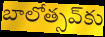
బాలోత్సవ్‌కు